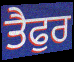
ਤੈਫੁਰ